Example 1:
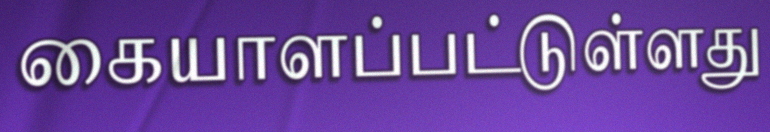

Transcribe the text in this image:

கையாளப்பட்டுள்ளது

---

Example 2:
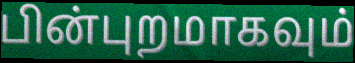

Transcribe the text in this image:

பின்புறமாகவும்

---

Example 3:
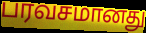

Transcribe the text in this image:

பரவசமானது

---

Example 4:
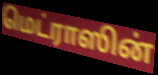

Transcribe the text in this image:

மெட்ராஸின்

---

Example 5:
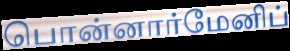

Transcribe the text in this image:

பொன்னார்மேனிப்